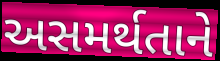
અસમર્થતાને